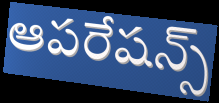
ఆపరేషన్స్